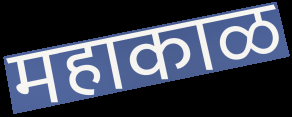
महाकाळ